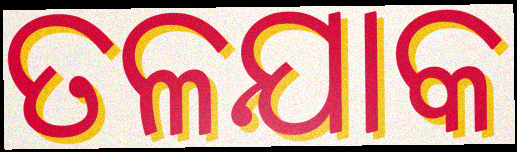
ତଳଯାକ